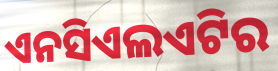
ଏନସିଏଲଏଟିର